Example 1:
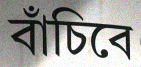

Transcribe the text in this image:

বাঁচিবে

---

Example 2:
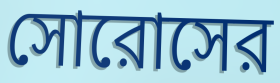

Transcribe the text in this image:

সোরোসের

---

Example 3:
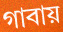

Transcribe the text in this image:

গাবায়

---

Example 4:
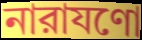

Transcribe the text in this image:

নারাযণো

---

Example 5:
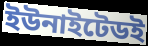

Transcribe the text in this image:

ইউনাইটেডই